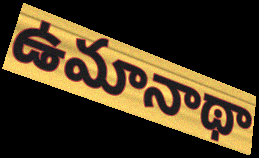
ఉమానాథా